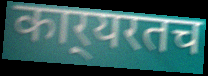
कार्यरतच